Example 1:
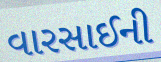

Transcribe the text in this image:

વારસાઈની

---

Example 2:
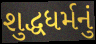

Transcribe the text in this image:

શુદ્ધધર્મનું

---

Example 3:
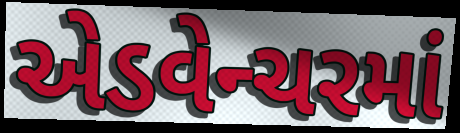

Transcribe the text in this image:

એડવેન્ચરમાં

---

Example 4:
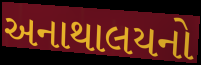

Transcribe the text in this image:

અનાથાલયનો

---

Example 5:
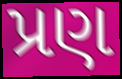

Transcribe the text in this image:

પ્રણ